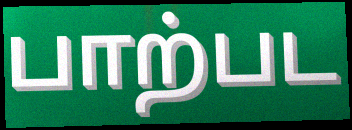
பாற்பட